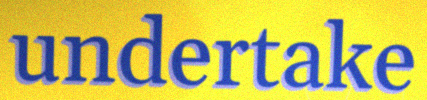
undertake